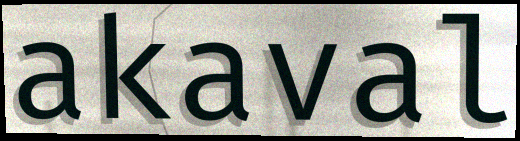
akaval